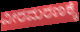
ವೀರಮರಣಕ್ಕೆ